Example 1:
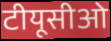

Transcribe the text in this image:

टीयूसीओ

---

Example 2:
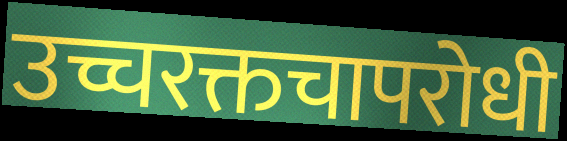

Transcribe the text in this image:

उच्चरक्तचापरोधी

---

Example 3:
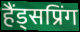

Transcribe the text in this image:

हैंड्सप्रिंग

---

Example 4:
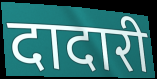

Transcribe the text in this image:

दादारी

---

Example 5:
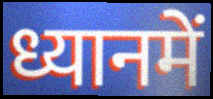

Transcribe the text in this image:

ध्यानमें